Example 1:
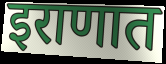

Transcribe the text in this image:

इराणात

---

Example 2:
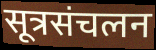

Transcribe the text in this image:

सूत्रसंचलन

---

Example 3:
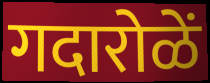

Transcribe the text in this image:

गदारोळें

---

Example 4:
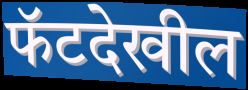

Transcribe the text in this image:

फॅटदेखील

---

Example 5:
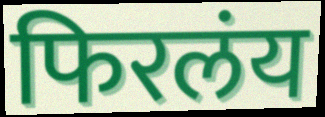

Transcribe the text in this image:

फिरलंय